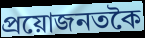
প্ৰয়োজনতকৈ